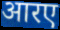
आरए